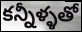
కన్నీళ్ళతో